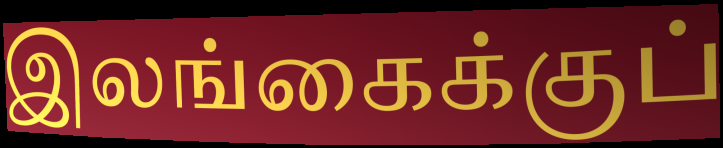
இலங்கைக்குப்